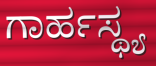
ಗಾರ್ಹಸ್ಥ್ಯ